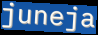
juneja